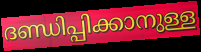
ദണ്ഡിപ്പിക്കാനുള്ള